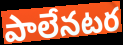
పాలేనటర